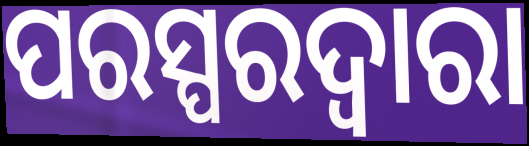
ପରସ୍ପରଦ୍ୱାରା